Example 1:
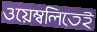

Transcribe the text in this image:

ওয়েম্বলিতেই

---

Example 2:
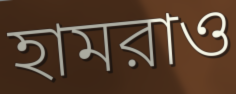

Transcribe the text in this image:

হামরাও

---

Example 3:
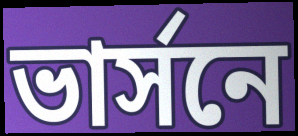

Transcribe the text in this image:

ভার্সনে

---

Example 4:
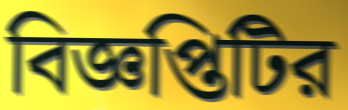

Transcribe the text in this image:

বিজ্ঞপ্তিটির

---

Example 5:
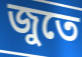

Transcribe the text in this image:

জুতে